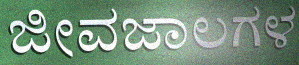
ಜೀವಜಾಲಗಳ